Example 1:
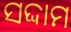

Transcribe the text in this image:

ସଦ୍ଦାମ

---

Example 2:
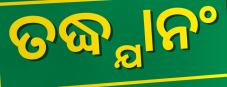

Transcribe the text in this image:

ତଦ୍ଧ୍ଯାନଂ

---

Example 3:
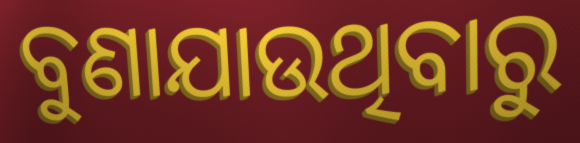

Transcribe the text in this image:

ବୁଣାଯାଉଥିବାରୁ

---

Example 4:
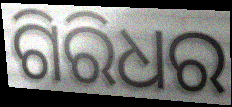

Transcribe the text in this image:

ଗିରିଧର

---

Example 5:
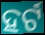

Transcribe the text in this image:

ହର୍ଟ